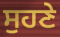
ਸੁਹਣੇ